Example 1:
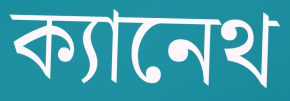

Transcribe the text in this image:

ক্যানেথ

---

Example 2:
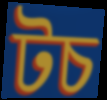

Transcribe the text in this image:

টচ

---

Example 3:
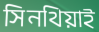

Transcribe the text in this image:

সিনথিয়াই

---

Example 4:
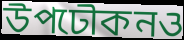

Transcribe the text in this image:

উপঢৌকনও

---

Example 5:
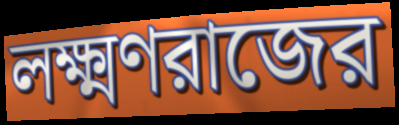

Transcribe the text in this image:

লক্ষ্মণরাজের